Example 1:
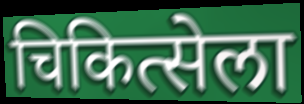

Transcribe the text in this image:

चिकित्सेला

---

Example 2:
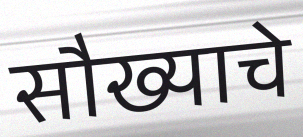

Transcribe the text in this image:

सौख्याचे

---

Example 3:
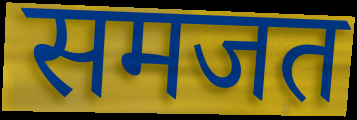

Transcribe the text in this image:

समजत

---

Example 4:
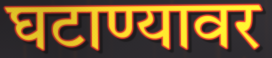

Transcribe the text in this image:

घटाण्यावर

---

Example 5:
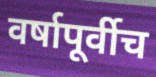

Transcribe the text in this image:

वर्षापूर्वीच